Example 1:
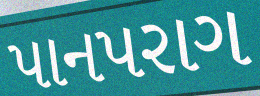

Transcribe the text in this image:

પાનપરાગ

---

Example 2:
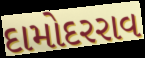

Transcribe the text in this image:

દામોદરરાવ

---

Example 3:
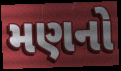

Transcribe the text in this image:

મણનો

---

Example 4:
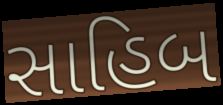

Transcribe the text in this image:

સાહિબ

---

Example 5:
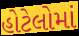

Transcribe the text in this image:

હોટેલોમાં